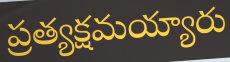
ప్రత్యక్షమయ్యారు